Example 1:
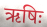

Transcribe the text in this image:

ऋषिः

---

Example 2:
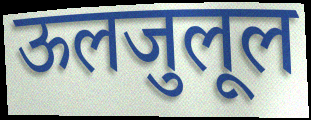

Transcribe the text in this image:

ऊलजुलूल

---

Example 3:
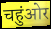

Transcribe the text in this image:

चहुंओर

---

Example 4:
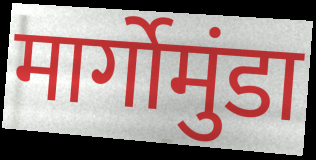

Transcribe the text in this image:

मार्गोमुंडा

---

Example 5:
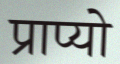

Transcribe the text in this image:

प्राप्यो